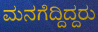
ಮನಗೆದ್ದಿದ್ದರು